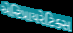
એન્ટિપ્રાયરેટિક્સ